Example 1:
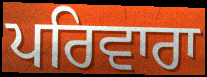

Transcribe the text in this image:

ਪਰਿਵਾਰਾ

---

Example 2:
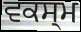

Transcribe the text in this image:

ਵਕਸ੍ਮ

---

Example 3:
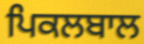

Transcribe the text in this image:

ਪਿਕਲਬਾਲ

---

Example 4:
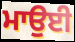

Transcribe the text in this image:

ਮਾਉਈ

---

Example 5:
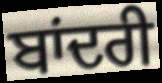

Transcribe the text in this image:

ਬਾਂਦਰੀ